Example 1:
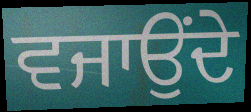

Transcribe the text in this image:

ਵਜਾਉਂਦੇ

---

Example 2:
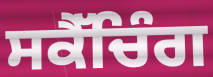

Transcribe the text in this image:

ਸਕੈੱਚਿੰਗ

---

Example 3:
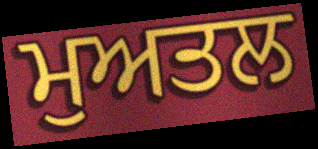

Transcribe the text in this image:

ਮੁਅਤਲ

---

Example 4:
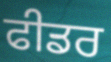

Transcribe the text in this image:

ਫੀਡਰ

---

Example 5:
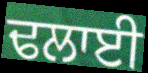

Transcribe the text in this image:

ਢਲਾਈ